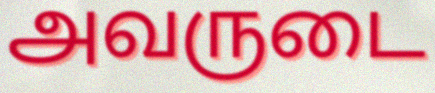
அவருடை